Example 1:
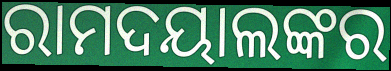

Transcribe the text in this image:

ରାମଦୟାଲଙ୍କର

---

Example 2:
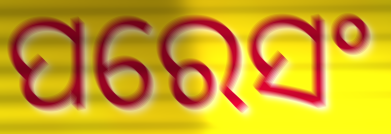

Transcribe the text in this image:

ପରେସଂ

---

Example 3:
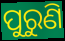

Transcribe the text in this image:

ପୁରୁଣି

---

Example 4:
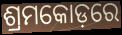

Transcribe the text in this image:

ଶ୍ରମକୋଡ଼ରେ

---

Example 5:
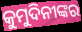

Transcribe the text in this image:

କୁମୁଦିନୀଙ୍କର